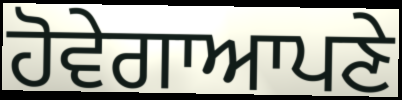
ਹੋਵੇਗਾਆਪਣੇ